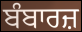
ਬੰਬਾਰਜ਼